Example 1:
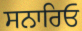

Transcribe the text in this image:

ਸਨਾਰਿਓ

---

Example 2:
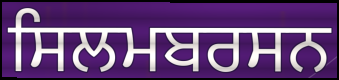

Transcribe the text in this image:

ਸਿਲਮਬਰਸਨ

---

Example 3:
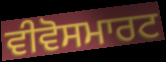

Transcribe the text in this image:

ਵੀਵੋਸਮਾਰਟ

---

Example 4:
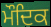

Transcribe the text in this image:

ਮੌਦਿਕ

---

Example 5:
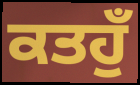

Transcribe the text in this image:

ਕਤਹੁਁ